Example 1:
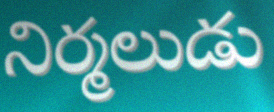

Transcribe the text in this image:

నిర్మలుడు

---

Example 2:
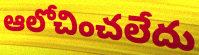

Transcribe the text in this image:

ఆలోచించలేదు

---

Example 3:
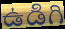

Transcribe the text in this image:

ఉడిగి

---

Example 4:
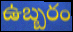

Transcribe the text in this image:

ఉబ్బరం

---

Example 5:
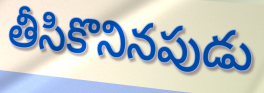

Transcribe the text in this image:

తీసికొనినపుడు